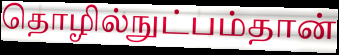
தொழில்நுட்பம்தான்